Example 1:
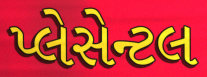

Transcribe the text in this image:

પ્લેસેન્ટલ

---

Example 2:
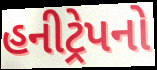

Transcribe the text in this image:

હનીટ્રેપનો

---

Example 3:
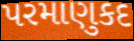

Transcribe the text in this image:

પરમાણુકદ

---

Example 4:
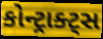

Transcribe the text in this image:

કોન્ટ્રાક્ટ્સ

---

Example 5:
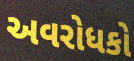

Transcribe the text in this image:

અવરોધકો